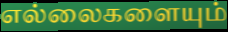
எல்லைகளையும்